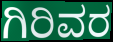
ಗಿರಿವರ